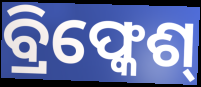
ବ୍ରିଫ୍କେଶ୍